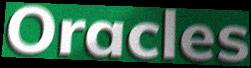
Oracles